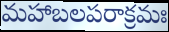
మహాబలపరాక్రమః